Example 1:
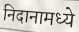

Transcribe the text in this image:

निदानामध्ये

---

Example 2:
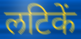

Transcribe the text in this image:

लटिकें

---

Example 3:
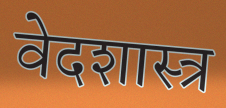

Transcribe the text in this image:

वेदशास्त्र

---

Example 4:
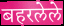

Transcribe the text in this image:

बहरलेले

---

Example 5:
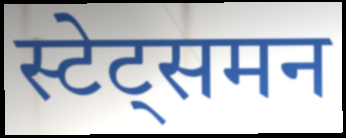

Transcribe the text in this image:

स्टेट्समन